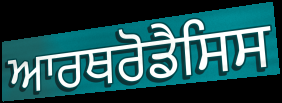
ਆਰਥਰੋਡੈਸਿਸ